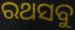
ରଥସବୁ